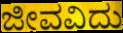
ಜೀವವಿದು